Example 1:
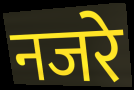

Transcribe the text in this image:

नजरे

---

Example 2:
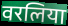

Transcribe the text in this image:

वरलिया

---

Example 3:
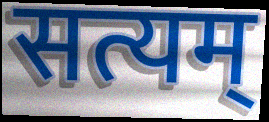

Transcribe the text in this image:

सत्यम्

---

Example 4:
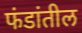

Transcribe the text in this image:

फंडांतील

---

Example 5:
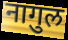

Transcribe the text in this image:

नागुल